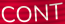
CONT